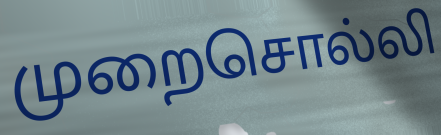
முறைசொல்லி